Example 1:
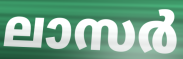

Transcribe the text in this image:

ലാസർ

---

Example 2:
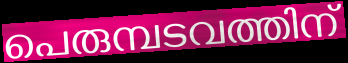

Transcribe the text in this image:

പെരുമ്പടവത്തിന്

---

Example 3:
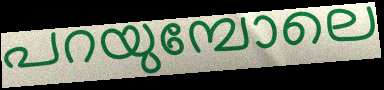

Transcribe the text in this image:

പറയുമ്പോലെ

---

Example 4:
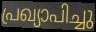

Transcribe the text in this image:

പ്രഖ്യാപിച്ചു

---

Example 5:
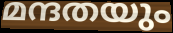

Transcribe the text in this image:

മന്ദതയും